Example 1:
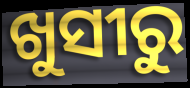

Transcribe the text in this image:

ଖୁସୀରୁ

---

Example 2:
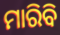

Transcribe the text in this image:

ମାରିବି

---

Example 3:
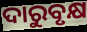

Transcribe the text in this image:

ଦାରୁବୃକ୍ଷ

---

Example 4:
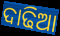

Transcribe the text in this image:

ଦାଢିଆ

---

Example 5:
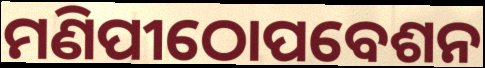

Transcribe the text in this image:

ମଣିପୀଠୋପବେଶନ